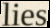
lies